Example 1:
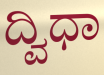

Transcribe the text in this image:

ದ್ವಿಧಾ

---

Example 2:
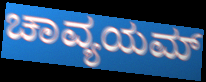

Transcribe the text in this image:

ಚಾವ್ಯಯಮ್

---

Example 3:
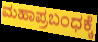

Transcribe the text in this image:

ಮಹಾಪ್ರಬಂಧಕ್ಕೆ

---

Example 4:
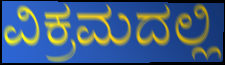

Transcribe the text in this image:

ವಿಕ್ರಮದಲ್ಲಿ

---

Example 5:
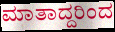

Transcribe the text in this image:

ಮಾತಾದ್ದರಿಂದ